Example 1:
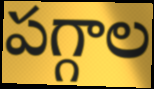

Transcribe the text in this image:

పగ్గాల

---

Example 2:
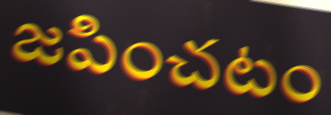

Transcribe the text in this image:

జపించటం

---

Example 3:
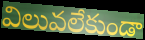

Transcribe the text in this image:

విలువలేకుండా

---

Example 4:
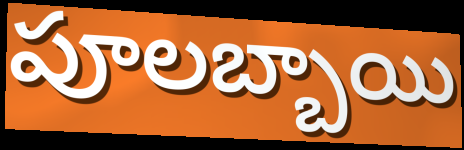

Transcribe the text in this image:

పూలబ్బాయి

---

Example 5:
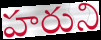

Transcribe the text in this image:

హరుని